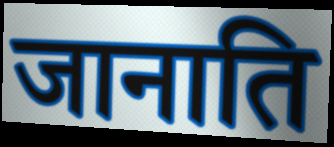
जानाति